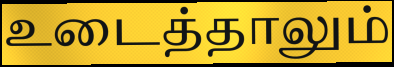
உடைத்தாலும்